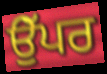
ਉੁੱਪਰ